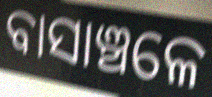
ବାସାଞ୍ଚଳେ